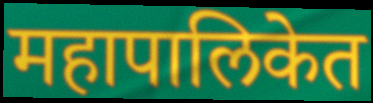
महापालिकेत